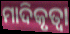
ମାଦିକୃତ୍ୱା